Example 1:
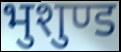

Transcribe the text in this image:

भुशुण्ड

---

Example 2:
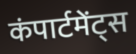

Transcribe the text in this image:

कंपार्टमेंट्स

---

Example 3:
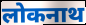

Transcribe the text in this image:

लोकनाथ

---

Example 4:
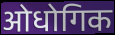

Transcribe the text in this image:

ओधोगिक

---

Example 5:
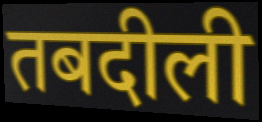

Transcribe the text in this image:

तबदीली